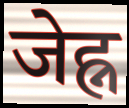
जेह्न